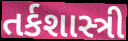
તર્કશાસ્ત્રી